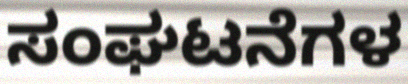
ಸಂಘಟನೆಗಳ